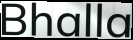
Bhalla